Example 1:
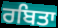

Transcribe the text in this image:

ਰਬਿਤਾ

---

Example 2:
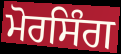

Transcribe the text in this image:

ਮੋਰਸਿੰਗ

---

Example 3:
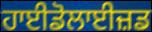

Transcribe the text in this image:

ਹਾਈਡੋਲਾਈਜ਼ਡ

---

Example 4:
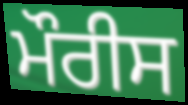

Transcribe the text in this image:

ਮੌਰੀਸ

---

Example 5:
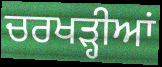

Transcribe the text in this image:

ਚਰਖੜ੍ਹੀਆਂ